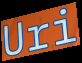
Uri